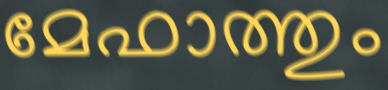
മേഫാത്തും